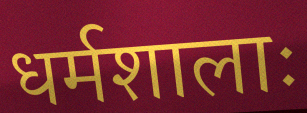
धर्मशालाः